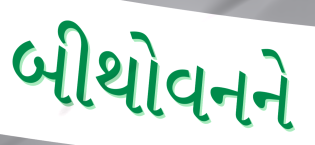
બીથોવનને